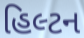
હિલ્ટન